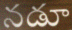
నడూ